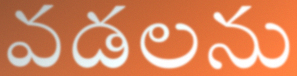
వడలను